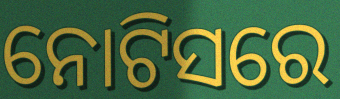
ନୋଟିସରେ